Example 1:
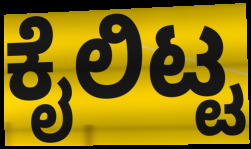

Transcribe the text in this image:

ಕೈಲಿಟ್ಟ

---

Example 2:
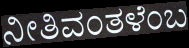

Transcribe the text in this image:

ನೀತಿವಂತಳೆಂಬ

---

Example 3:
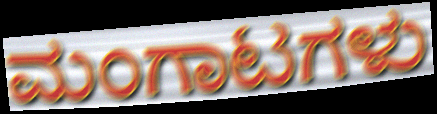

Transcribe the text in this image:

ಮಂಗಾಟಗಳು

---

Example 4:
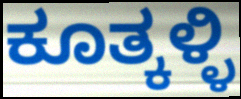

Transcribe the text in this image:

ಕೂತ್ಕಳ್ಳಿ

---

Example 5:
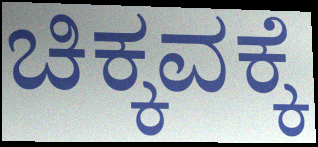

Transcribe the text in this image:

ಚಿಕ್ಕವಕ್ಕೆ